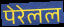
पेरेलल